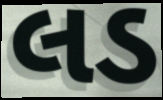
લડ